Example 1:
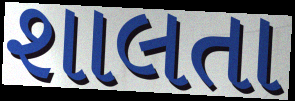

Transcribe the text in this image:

શાલતા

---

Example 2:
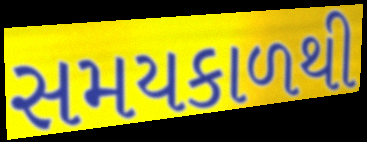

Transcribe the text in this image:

સમયકાળથી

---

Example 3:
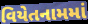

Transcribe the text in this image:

વિયેતનામમાં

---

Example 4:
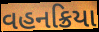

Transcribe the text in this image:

વહનક્રિયા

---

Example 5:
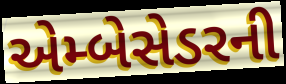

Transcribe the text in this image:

એમ્બેસેડરની